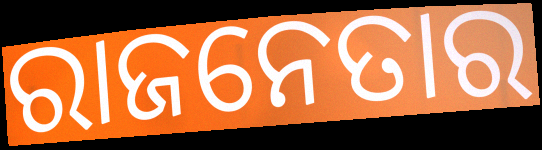
ରାଜନେତାର